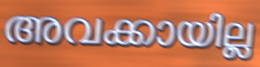
അവക്കായില്ല